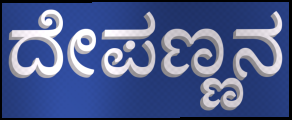
ದೇಪಣ್ಣನ